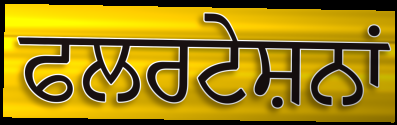
ਫਲਰਟੇਸ਼ਨਾਂ